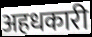
अहधकारी